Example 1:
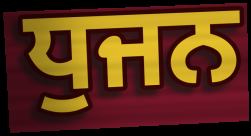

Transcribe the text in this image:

ਧੁਜਨ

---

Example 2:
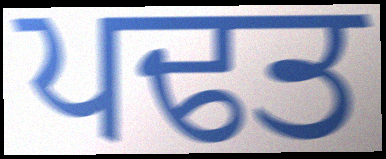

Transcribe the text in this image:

ਪਢਤ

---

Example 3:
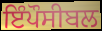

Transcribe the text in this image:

ਇੰਪੌਸੀਬਲ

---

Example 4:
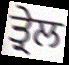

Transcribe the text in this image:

ਤ੍ਰੇਲ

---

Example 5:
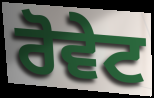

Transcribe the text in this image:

ਰੋਵੇਟ